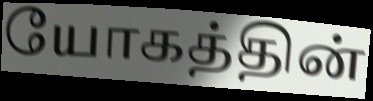
யோகத்தின்